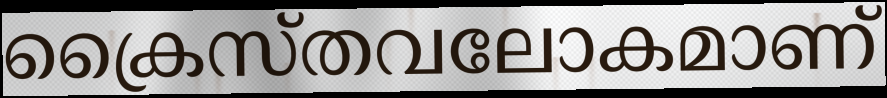
ക്രൈസ്തവലോകമാണ്